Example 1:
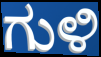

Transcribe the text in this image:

ಗುಳಿ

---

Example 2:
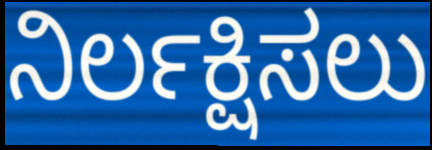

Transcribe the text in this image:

ನಿರ್ಲಕ್ಷಿಸಲು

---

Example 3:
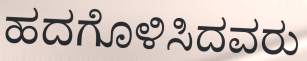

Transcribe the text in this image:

ಹದಗೊಳಿಸಿದವರು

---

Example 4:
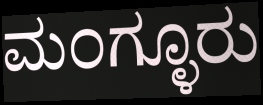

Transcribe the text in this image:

ಮಂಗ್ಳೂರು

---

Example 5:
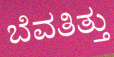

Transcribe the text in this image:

ಬೆವತಿತ್ತು